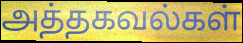
அத்தகவல்கள்